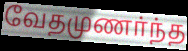
வேதமுணர்ந்த